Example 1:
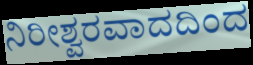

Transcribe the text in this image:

ನಿರೀಶ್ವರವಾದದಿಂದ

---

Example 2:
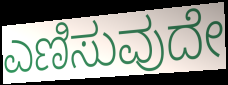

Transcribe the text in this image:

ಎಣಿಸುವುದೇ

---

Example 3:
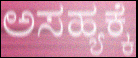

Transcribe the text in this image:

ಅಸಹ್ಯಕ್ಕೆ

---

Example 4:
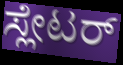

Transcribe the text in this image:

ಸ್ಲೇಟರ್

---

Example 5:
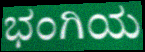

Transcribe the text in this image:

ಭಂಗಿಯ